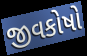
જીવકોષો